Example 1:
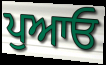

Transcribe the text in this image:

ਪੁਆਓ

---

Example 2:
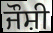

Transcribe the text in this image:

ਜੌਸ਼ੀ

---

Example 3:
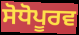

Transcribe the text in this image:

ਸੋਧੋਪੂਰਵ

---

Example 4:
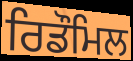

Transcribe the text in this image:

ਰਿਡੌਮਿਲ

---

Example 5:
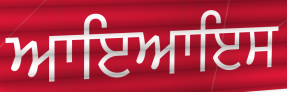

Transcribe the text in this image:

ਆਇਆਇਸ